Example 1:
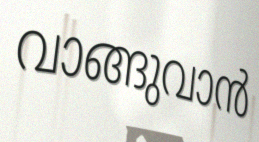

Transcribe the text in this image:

വാങ്ങുവാൻ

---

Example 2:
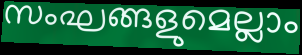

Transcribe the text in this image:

സംഘങ്ങളുമെല്ലാം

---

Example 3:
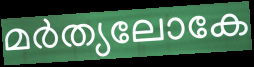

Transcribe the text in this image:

മർത്യലോകേ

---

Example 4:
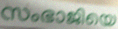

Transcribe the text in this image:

സംഭാജിയെ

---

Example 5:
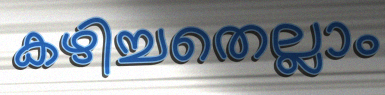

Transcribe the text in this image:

കഴിച്ചതെല്ലാം